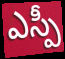
ఎస్పీ